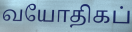
வயோதிகப்